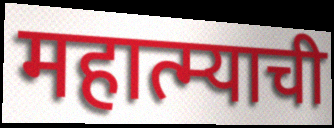
महात्म्याची